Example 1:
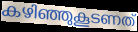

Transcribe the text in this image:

കഴിഞ്ഞുകൂടണത്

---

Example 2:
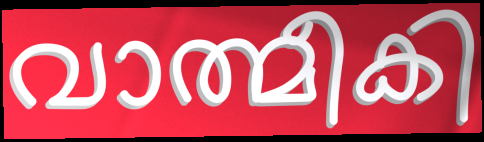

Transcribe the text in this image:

വാത്മീകി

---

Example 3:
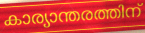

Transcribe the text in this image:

കാര്യാന്തരത്തിന്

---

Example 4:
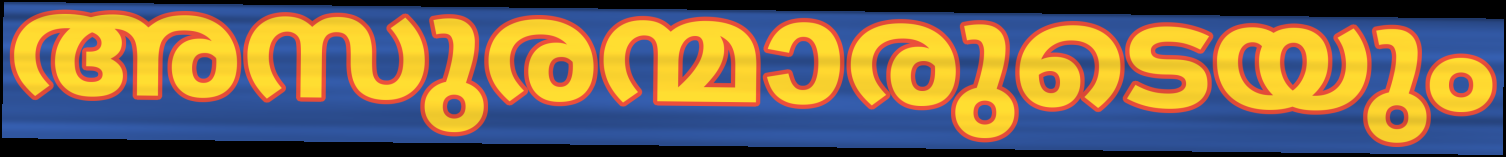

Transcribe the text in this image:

അസുരന്മാരുടെയും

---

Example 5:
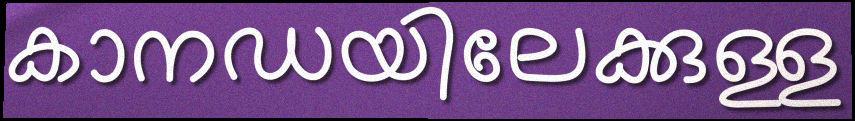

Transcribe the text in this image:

കാനഡയിലേക്കുള്ള